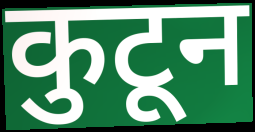
कुटून